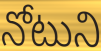
నోటుని